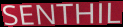
SENTHIL